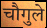
चौगुले